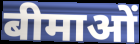
बीमाओं